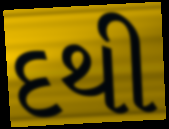
દથી